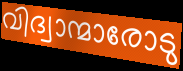
വിദ്വാന്മാരോടു